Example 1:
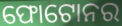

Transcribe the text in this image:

ଫୋଟୋନର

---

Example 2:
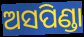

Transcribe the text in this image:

ଅସପିଣ୍ଡା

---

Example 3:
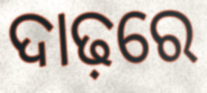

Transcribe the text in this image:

ଦାଢ଼ରେ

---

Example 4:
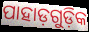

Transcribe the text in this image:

ପାହାଡ଼ଗୁଡ଼ିକ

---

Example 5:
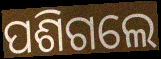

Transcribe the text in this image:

ପଶିଗଲେ